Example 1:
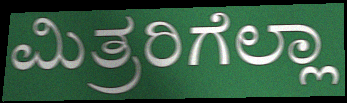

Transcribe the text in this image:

ಮಿತ್ರರಿಗೆಲ್ಲಾ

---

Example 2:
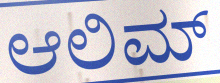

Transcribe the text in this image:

ಆಲಿಮ್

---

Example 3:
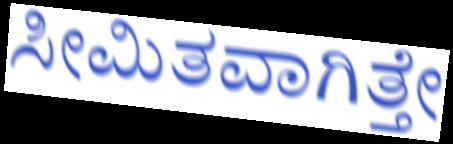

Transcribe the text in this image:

ಸೀಮಿತವಾಗಿತ್ತೇ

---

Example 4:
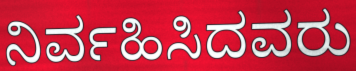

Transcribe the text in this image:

ನಿರ್ವಹಿಸಿದವರು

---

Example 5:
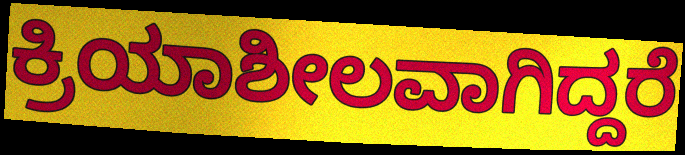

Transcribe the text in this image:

ಕ್ರಿಯಾಶೀಲವಾಗಿದ್ದರೆ